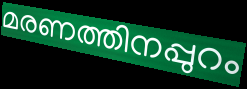
മരണത്തിനപ്പുറം